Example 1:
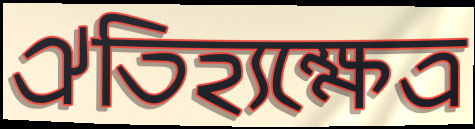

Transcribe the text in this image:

ঐতিহ্যক্ষেত্ৰ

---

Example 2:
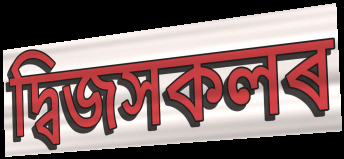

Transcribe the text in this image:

দ্বিজসকলৰ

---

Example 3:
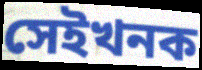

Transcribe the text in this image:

সেইখনক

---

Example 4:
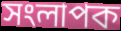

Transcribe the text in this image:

সংলাপক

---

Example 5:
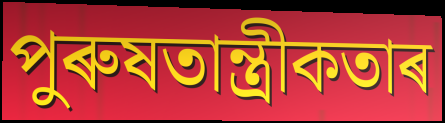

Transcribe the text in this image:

পুৰুষতান্ত্ৰীকতাৰ